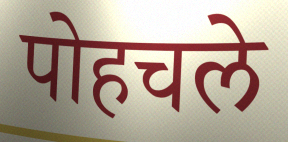
पोहचले